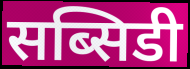
सब्सिडी